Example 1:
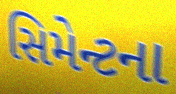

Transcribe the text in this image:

સિમેન્ટના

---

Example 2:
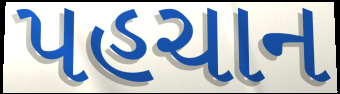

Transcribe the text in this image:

પહચાન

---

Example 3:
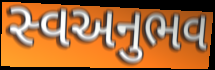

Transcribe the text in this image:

સ્વઅનુભવ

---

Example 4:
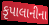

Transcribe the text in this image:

કૃપાલાનીના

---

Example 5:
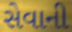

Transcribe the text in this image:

સેવાની